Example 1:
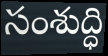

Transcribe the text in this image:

సంశుద్ధి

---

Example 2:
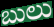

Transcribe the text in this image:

బులు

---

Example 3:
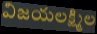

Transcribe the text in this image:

విజయలక్ష్మిల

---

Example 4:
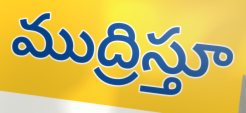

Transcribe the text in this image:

ముద్రిస్తూ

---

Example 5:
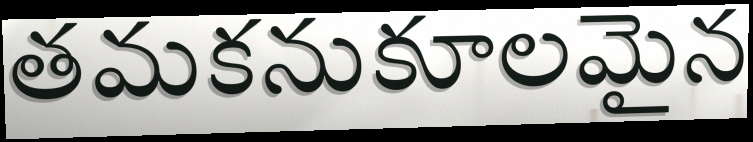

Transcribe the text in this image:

తమకనుకూలమైన